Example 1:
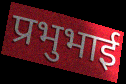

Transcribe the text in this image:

प्रभुभाई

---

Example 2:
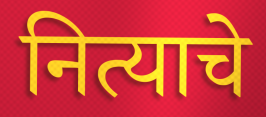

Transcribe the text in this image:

नित्याचे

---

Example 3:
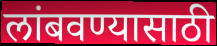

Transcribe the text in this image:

लांबवण्यासाठी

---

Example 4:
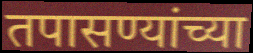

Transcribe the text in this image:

तपासण्यांच्या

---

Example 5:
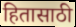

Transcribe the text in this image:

हितासाठी